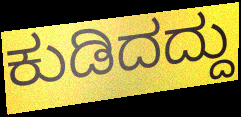
ಕುಡಿದದ್ದು